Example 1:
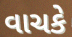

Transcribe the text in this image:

વાચકે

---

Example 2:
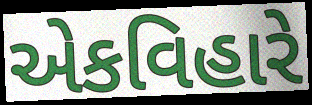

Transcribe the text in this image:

એકવિહારે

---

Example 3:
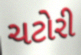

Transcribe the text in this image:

ચટોરી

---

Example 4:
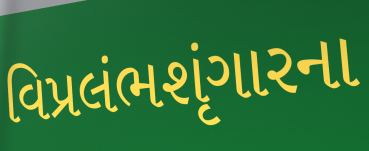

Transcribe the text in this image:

વિપ્રલંભશૃંગારના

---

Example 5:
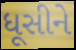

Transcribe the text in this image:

ધૂસીને